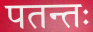
पतन्तः